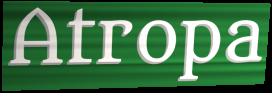
Atropa